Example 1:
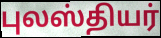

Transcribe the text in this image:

புலஸ்தியர்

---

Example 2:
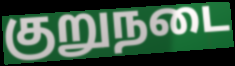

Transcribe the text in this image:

குறுநடை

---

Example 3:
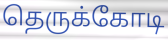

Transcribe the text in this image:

தெருக்கோடி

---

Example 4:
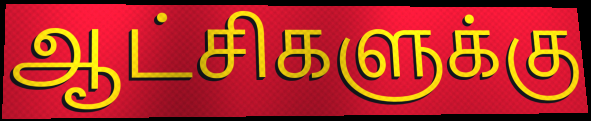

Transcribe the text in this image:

ஆட்சிகளுக்கு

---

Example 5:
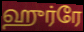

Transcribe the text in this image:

ஹுர்ரே